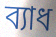
ব্যাধ